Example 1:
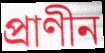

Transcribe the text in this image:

প্রাণীন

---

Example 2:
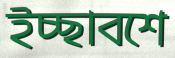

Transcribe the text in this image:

ইচ্ছাবশে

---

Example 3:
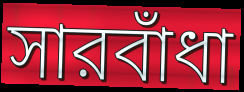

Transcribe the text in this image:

সারবাঁধা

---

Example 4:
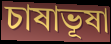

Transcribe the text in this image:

চাষাভূষা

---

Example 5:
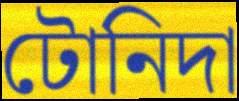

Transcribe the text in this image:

টোনিদা